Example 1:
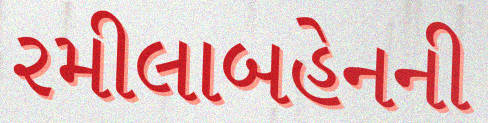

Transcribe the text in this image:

રમીલાબહેનની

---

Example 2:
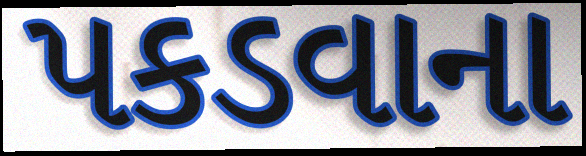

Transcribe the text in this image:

પકડવાના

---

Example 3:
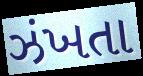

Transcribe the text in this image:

ઝંખતા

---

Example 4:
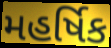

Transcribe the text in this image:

મહર્ષિક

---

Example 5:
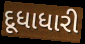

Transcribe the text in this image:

દૂધાધારી